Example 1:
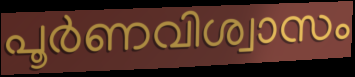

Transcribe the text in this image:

പൂർണവിശ്വാസം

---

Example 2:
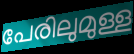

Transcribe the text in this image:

പേരിലുമുള്ള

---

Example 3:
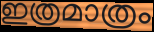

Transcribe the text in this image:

ഇത്രമാത്രം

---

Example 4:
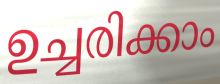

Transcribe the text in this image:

ഉച്ചരിക്കാം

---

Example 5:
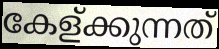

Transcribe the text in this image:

കേള്ക്കുന്നത്